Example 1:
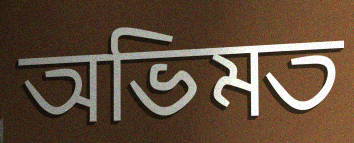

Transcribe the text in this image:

অভিমত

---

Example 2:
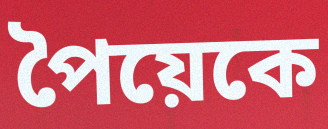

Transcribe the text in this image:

পৈয়েকে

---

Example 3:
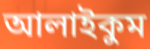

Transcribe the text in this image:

আলাইকুম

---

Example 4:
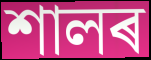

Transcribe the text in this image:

শালৰ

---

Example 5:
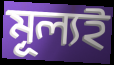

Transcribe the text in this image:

মূল্যই